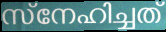
സ്‌നേഹിച്ചത്